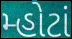
મ્હોટાં